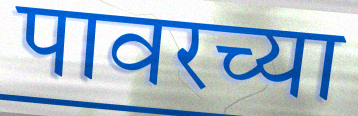
पावरच्या